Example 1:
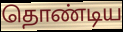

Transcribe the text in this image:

தொண்டிய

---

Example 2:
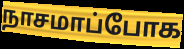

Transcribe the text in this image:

நாசமாப்போக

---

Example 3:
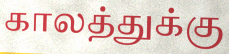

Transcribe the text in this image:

காலத்துக்கு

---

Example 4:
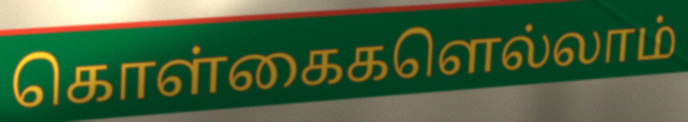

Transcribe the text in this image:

கொள்கைகளெல்லாம்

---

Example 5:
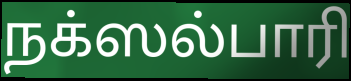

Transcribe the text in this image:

நக்ஸல்பாரி